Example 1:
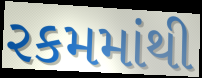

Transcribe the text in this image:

રકમમાંથી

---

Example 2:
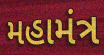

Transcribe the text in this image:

મહામંત્ર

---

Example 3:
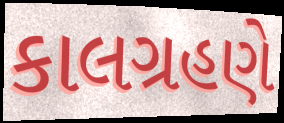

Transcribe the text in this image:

કાલગ્રહણે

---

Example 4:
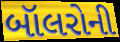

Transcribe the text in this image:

બૉલરોની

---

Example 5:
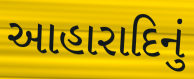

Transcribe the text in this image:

આહારાદિનું